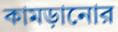
কামড়ানোর